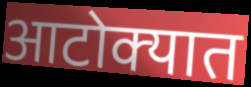
आटोक्‍यात